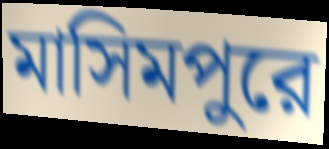
মাসিমপুরে